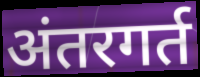
अंतरगर्त